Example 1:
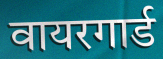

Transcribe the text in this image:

वायरगार्ड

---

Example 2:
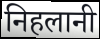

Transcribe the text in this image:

निहलानी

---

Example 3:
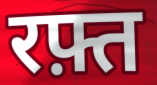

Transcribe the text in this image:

रफ़्त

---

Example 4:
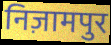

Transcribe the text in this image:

निज़ामपुर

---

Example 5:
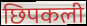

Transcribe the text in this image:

छिपकली